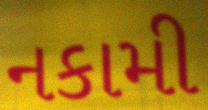
નકામી